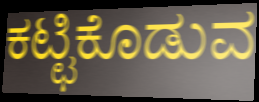
ಕಟ್ಟಿಕೊಡುವ